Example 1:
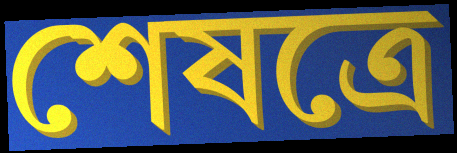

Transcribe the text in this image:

শেষত্রে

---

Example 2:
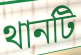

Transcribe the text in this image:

থানটি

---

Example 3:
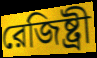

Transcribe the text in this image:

রেজিষ্ট্রী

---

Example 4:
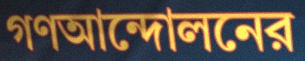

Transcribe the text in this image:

গণআন্দোলনের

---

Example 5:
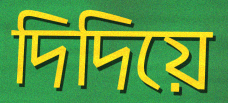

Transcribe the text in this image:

দিদিয়ে